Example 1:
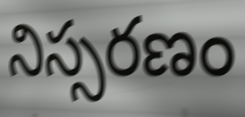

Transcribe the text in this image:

నిస్సరణం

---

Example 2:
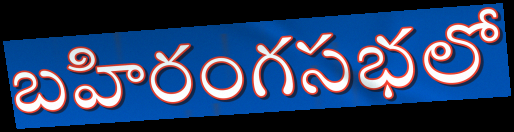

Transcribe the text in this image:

బహిరంగసభలో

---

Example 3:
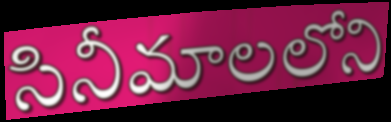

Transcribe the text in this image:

సినీమాలలోని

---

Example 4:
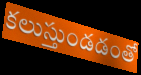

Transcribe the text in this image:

కలుస్తుండడంతో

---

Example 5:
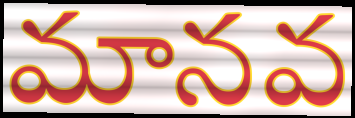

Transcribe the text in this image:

మానవ